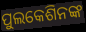
ପୁଲକେଶିନଙ୍କ